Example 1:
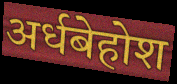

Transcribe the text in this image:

अर्धबेहोश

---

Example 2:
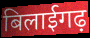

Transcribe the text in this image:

बिलाईगढ़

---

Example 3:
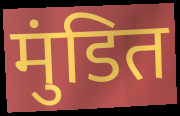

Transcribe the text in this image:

मुंडित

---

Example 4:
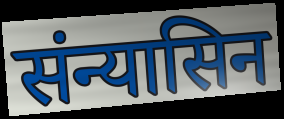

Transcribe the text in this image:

संन्यासिन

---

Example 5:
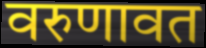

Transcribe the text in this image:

वरुणावत